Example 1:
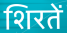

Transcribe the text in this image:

शिरतें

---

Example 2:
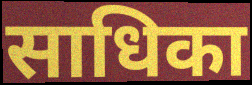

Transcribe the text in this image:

साधिका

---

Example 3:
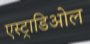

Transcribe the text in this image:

एस्ट्राडिओल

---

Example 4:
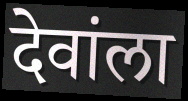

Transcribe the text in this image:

देवांला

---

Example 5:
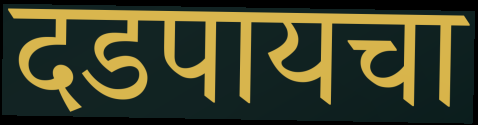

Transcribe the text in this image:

दडपायचा